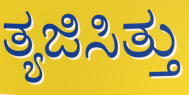
ತ್ಯಜಿಸಿತ್ತು